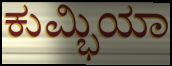
ಕುಮ್ಭಿಯಾ